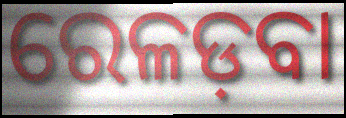
ରେଳଡ଼ବା